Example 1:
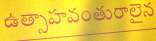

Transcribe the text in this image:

ఉత్సాహవంతురాలైన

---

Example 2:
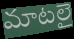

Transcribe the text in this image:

మాటలై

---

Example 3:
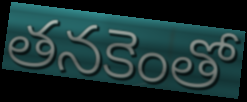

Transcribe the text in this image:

తనకెంతో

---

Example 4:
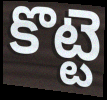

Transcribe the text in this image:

కొట్టె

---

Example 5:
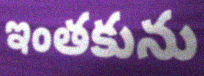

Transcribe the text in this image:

ఇంతకును